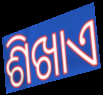
ଶିଖାଏ